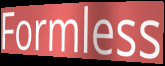
Formless